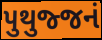
પુથુજ્જનં